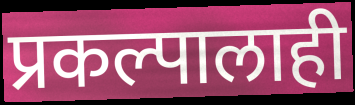
प्रकल्पालाही